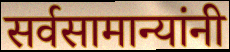
सर्वसामान्यांनी